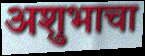
अशुभाचा